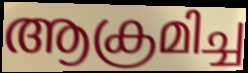
ആക്രമിച്ച